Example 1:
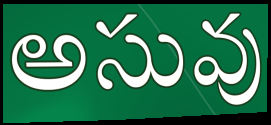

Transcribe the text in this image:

అసువు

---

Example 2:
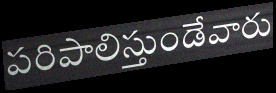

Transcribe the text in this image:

పరిపాలిస్తుండేవారు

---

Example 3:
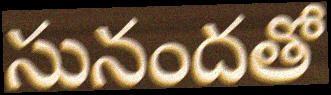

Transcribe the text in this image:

సునందతో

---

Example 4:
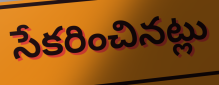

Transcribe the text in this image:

సేకరించినట్లు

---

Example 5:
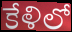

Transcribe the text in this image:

కేళిలో